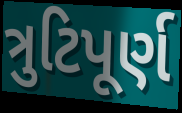
ત્રુટિપૂર્ણ